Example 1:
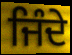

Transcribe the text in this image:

ਜਿੰਦੇ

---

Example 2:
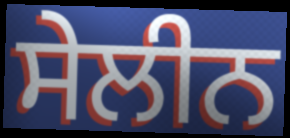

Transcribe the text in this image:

ਸੇਲੀਨ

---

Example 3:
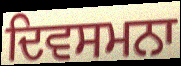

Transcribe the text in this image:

ਦਿਵਸਮਨਾ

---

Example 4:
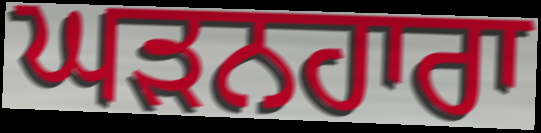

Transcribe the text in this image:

ਘੜਨਹਾਰਾ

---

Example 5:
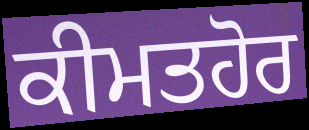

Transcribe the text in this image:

ਕੀਮਤਹੋਰ